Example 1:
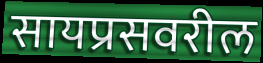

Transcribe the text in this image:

सायप्रसवरील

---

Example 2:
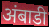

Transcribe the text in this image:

अंबाडी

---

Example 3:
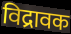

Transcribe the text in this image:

विद्रावक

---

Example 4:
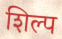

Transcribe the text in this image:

शिल्प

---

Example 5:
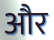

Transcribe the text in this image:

और